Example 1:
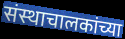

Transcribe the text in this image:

संस्थाचालकांच्या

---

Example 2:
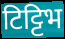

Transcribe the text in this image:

टिट्टिभ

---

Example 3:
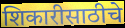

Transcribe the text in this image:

शिकारीसाठीचे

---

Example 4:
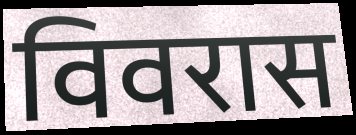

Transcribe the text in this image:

विवरास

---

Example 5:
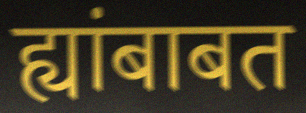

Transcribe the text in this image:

ह्यांबाबत